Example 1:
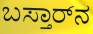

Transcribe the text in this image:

ಬಸ್ತಾರ್‌ನ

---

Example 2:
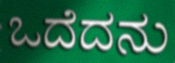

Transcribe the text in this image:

ಒದೆದನು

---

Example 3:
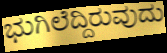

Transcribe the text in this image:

ಭುಗಿಲೆದ್ದಿರುವುದು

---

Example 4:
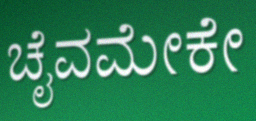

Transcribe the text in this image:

ಚೈವಮೇಕೇ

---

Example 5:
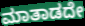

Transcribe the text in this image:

ಮಾತಾಡದೇ